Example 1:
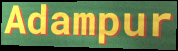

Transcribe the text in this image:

Adampur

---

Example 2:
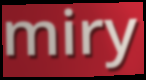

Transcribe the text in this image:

miry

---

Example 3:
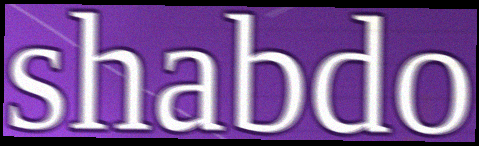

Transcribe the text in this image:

shabdo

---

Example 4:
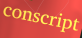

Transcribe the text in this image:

conscript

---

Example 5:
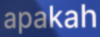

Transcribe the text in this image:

apakah